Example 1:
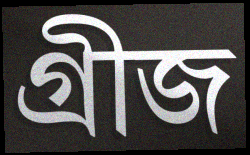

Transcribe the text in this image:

গ্ৰীজ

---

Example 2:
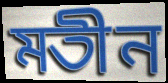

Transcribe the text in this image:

মতীন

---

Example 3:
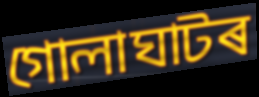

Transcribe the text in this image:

গোলাঘাটৰ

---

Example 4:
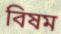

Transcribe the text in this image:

বিষম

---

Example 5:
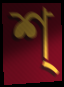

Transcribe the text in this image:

শ্